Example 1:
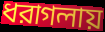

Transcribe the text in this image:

ধরাগলায়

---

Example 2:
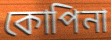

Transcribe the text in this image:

কোপিনা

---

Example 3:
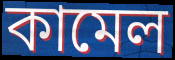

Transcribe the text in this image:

কামেল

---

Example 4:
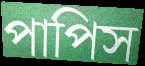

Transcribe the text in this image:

পাপিস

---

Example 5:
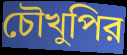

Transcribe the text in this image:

চৌখুপির